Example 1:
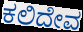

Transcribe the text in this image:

ಕಲಿದೇವ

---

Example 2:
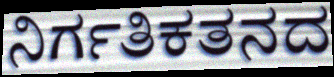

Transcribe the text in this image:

ನಿರ್ಗತಿಕತನದ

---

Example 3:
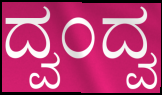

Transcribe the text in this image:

ದ್ವಂದ್ವ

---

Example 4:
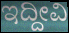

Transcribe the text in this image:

ಇದ್ದೀವಿ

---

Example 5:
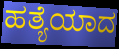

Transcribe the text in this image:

ಹತ್ಯೆಯಾದ